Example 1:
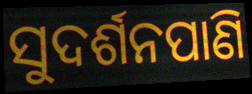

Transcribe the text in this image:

ସୁଦର୍ଶନପାଣି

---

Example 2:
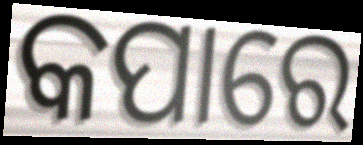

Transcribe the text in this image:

କପାରେ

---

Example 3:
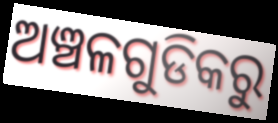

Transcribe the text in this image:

ଅଞ୍ଚଳଗୁଡିକରୁ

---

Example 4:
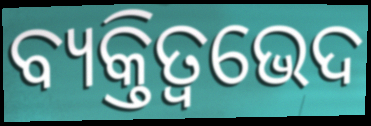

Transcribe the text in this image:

ବ୍ୟକ୍ତିତ୍ୱଭେଦ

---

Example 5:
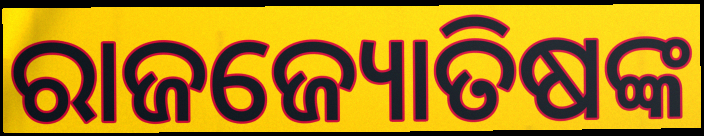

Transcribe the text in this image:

ରାଜଜ୍ୟୋତିଷଙ୍କ